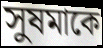
সুষমাকে